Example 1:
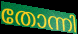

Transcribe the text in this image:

തോന്നി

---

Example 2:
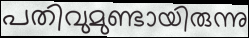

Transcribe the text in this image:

പതിവുമുണ്ടായിരുന്നു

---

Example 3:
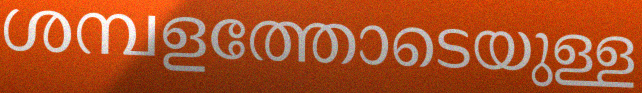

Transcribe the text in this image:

ശമ്പളത്തോടെയുള്ള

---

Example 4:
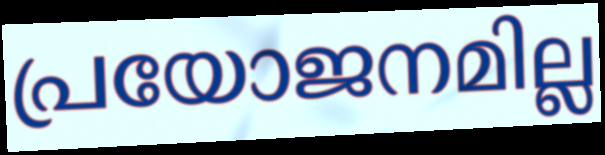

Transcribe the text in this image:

പ്രയോജനമില്ല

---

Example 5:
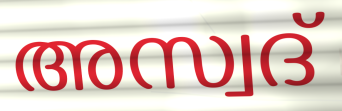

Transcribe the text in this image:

അസ്വദ്